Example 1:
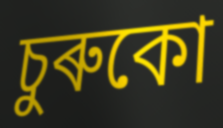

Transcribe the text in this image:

চুৰুকো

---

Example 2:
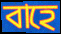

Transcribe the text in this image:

বাহে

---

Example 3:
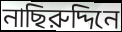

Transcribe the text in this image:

নাছিৰুদ্দিনে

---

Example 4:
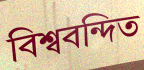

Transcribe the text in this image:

বিশ্ববন্দিত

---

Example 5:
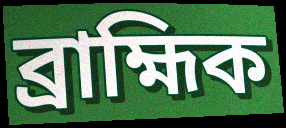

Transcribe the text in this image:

ব্ৰাহ্মিক